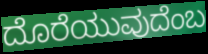
ದೊರೆಯುವುದೆಂಬ